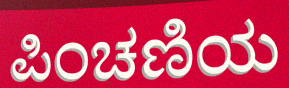
ಪಿಂಚಣಿಯ